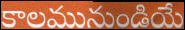
కాలమునుండియే